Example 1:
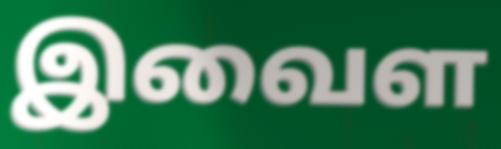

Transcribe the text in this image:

இவைள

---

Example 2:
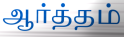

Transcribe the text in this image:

ஆர்த்தம்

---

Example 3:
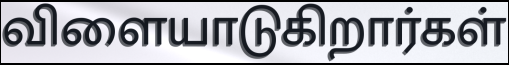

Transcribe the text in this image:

விளையாடுகிறார்கள்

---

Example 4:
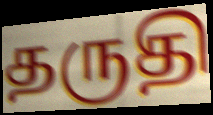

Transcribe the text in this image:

தருதி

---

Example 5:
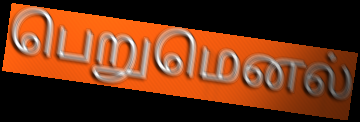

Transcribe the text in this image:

பெறுமெனல்